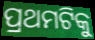
ପ୍ରଥମଟିକୁ